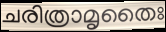
ചരിത്രാമൃതൈഃ